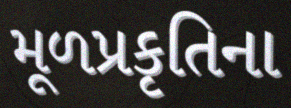
મૂળપ્રકૃતિના